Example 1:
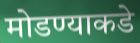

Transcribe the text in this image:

मोडण्याकडे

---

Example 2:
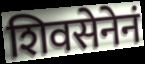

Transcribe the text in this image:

शिवसेनेनं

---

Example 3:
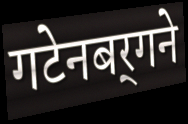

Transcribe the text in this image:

गटेनबर्गने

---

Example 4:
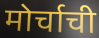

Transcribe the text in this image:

मोर्चाची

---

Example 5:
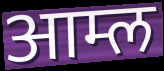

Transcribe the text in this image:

आम्‍ल